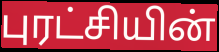
புரட்சியின்